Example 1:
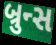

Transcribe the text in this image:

બ્રુન્સ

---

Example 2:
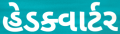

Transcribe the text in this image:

હેડક્વાર્ટર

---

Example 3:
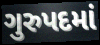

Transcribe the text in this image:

ગુરુપદમાં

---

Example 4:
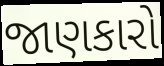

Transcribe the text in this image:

જાણકારો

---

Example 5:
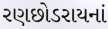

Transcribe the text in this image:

રણછોડરાયનાં